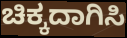
ಚಿಕ್ಕದಾಗಿಸಿ